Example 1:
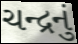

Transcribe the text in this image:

ચન્દ્રનું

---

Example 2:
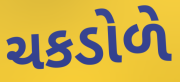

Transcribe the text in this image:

ચકડોળે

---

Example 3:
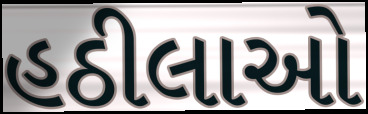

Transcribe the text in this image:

હઠીલાઓ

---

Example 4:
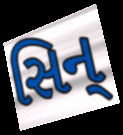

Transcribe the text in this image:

સિન્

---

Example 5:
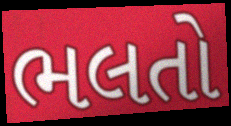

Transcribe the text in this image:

ભલતો